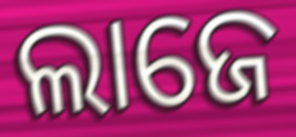
ଲାଜେ